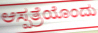
ಆಸ್ಪತ್ರೆಯೊಂದು